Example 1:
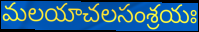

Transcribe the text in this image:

మలయాచలసంశ్రయః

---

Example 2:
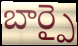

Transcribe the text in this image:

బార్పై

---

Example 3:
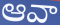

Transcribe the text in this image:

ఆవా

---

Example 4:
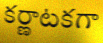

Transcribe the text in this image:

కర్ణాటకగా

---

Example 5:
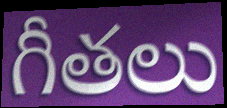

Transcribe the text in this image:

గీతలు